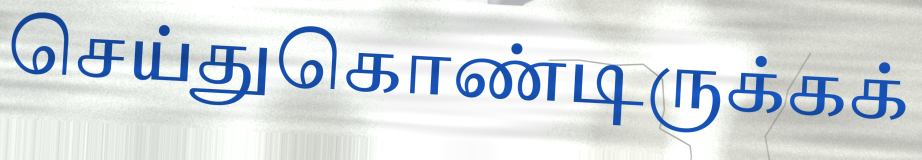
செய்துகொண்டிருக்கக்